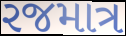
રજમાત્ર